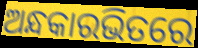
ଅନ୍ଧକାରଭିତରେ